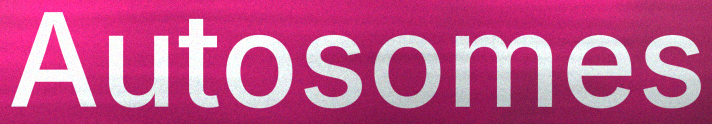
Autosomes